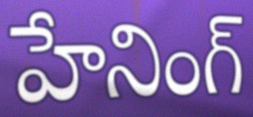
హేనింగ్